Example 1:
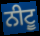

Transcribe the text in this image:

ਨੀਟੂ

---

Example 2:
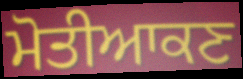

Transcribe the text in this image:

ਮੋਤੀਆਕਣ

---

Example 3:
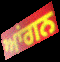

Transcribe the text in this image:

ਆਂਗਨ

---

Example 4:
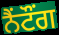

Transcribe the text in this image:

ਨੈਂਟੌਂਗ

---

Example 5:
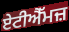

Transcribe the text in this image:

ਏਟੀਐੱਮਜ਼